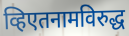
व्हिएतनामविरुद्ध